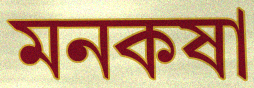
মনকষা